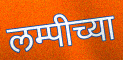
लम्पीच्या